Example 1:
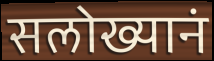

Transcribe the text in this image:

सलोख्यानं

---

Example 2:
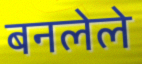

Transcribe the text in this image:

बनलेले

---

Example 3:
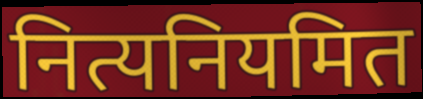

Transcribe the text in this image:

नित्यनियमित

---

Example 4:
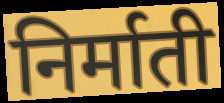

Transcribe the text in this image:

निर्माती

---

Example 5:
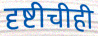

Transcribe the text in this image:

दृष्टीचीही